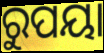
ରୁପୟା